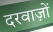
दरवाज़ों